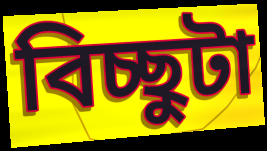
বিচ্ছুটা